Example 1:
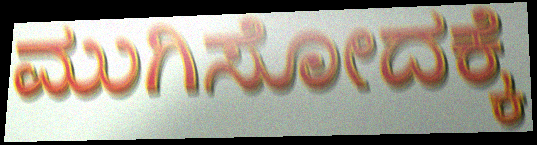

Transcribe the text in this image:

ಮುಗಿಸೋದಕ್ಕೆ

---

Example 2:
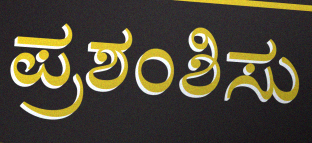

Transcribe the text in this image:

ಪ್ರಶಂಶಿಸು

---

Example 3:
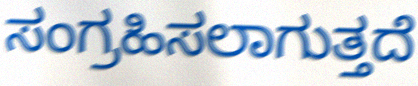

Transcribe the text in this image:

ಸಂಗ್ರಹಿಸಲಾಗುತ್ತದೆ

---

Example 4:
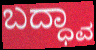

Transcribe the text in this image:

ಬದ್ಧ್ವಾ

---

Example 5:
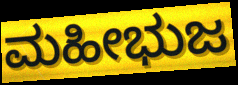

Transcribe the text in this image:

ಮಹೀಭುಜ